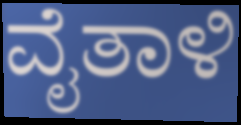
ವೈತಾಳಿ